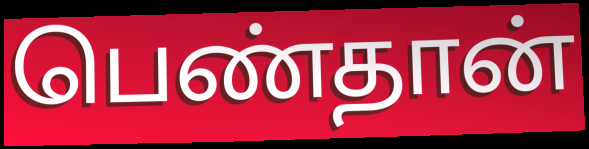
பெண்தான்